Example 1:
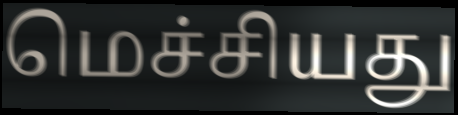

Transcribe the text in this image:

மெச்சியது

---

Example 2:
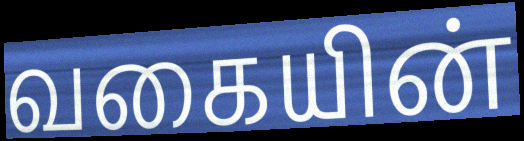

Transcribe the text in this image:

வகையின்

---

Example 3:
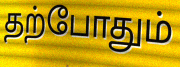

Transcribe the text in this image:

தற்போதும்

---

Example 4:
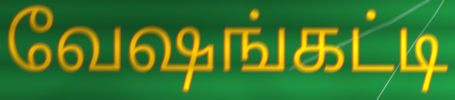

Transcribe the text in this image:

வேஷங்கட்டி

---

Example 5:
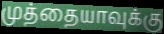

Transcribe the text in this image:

முத்தையாவுக்கு